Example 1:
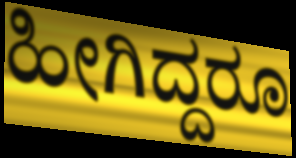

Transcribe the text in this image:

ಹೀಗಿದ್ದರೂ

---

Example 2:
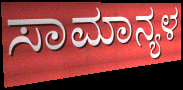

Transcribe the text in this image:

ಸಾಮಾನ್ಯಳ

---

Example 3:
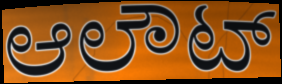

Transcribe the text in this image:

ಆಲೌಟ್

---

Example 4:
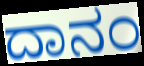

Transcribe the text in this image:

ದಾನಂ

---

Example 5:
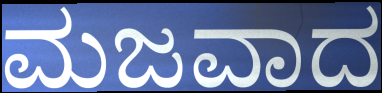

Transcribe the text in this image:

ಮಜವಾದ